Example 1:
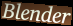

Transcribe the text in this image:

Blender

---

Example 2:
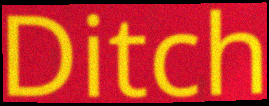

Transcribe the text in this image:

Ditch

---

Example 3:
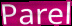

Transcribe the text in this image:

Parel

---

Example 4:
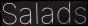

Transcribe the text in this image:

Salads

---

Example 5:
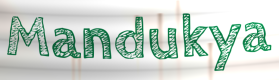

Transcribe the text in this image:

Mandukya